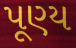
પૂણ્ય